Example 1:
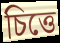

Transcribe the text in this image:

চিত্তে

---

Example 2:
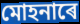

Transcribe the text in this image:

মোহনাৰে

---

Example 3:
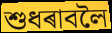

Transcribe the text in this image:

শুধৰাবলৈ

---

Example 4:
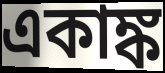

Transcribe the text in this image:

একাঙ্ক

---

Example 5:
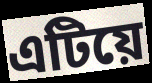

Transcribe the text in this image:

এটিয়ে